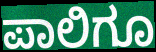
ಪಾಲಿಗೂ